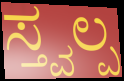
ಸ್ತ್ವಲ್ಪ